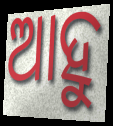
ଆହୁ